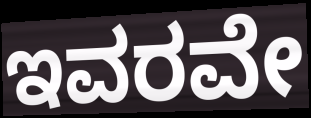
ಇವರವೇ